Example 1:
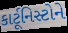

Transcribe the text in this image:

કાર્ટૂનિસ્ટોને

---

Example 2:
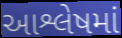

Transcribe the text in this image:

આશ્લેષમાં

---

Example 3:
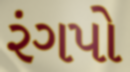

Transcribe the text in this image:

રંગપો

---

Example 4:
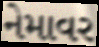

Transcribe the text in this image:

નેમાવર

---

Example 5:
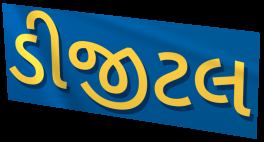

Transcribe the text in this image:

ડીજીટલ